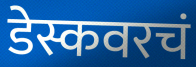
डेस्कवरचं